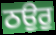
ਠਉਰੁ